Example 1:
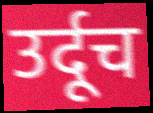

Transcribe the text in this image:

उर्दूच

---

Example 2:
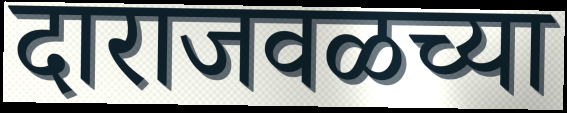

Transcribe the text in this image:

दाराजवळच्या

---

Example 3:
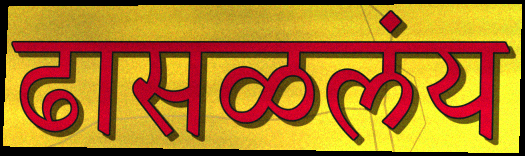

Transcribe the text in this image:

ढासळलंय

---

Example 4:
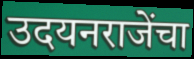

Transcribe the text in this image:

उदयनराजेंचा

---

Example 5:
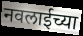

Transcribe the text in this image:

नवलाईच्या